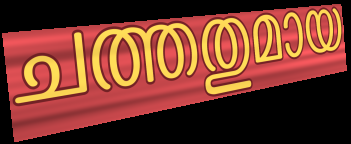
ചത്തതുമായ